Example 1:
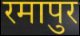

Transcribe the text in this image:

रमापुर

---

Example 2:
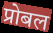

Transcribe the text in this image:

प्रोबल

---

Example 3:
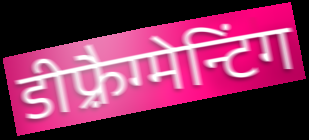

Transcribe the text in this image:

डीफ़्रैग्मेन्टिंग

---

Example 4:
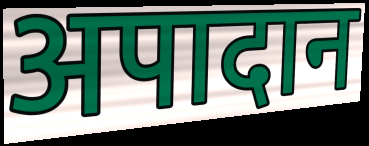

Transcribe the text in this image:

अपादान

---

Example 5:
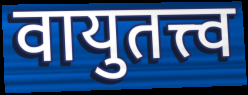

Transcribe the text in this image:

वायुतत्त्व